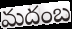
మదంబ